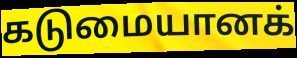
கடுமையானக்